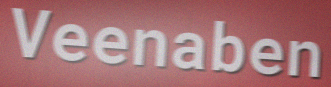
Veenaben